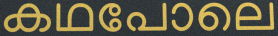
കഥപോലെ